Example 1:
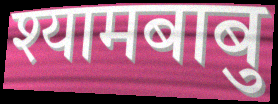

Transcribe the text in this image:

श्यामबाबु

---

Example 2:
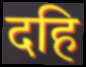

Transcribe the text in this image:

दहि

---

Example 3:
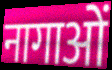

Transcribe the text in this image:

नागाओं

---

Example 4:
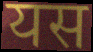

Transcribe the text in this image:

यस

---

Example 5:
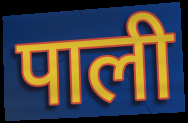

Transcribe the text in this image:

पाली